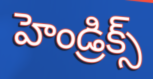
హెండ్రిక్స్